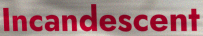
Incandescent